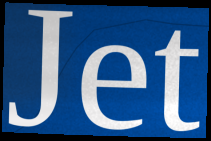
Jet